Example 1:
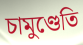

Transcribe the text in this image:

চামুণ্ডেতি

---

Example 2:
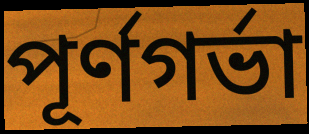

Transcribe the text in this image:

পূর্ণগর্ভা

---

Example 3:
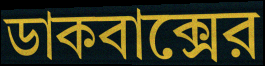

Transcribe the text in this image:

ডাকবাক্সের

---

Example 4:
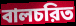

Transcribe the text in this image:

বালচরিত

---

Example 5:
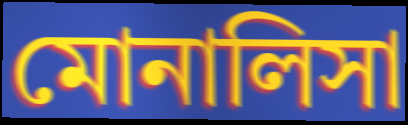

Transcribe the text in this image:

মোনালিসা